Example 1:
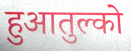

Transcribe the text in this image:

हुआतुल्को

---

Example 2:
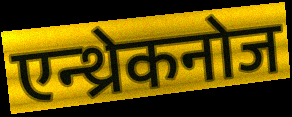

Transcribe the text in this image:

एन्थ्रेकनोज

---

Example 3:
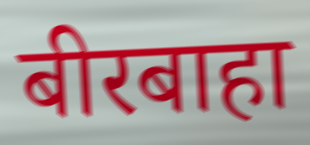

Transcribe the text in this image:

बीरबाहा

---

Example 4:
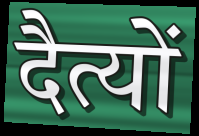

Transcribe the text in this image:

दैत्यों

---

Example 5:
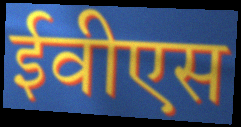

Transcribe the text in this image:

ईवीएस